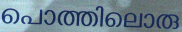
പൊത്തിലൊരു